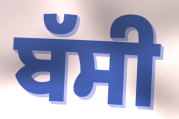
ਬੱਸੀ